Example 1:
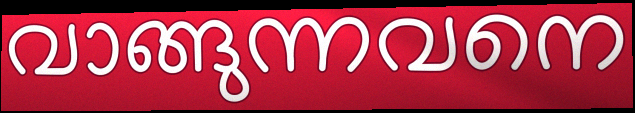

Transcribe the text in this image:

വാങ്ങുന്നവനെ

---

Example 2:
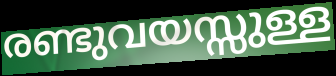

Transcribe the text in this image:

രണ്ടുവയസ്സുള്ള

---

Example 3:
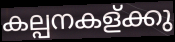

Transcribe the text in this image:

കല്പനകള്ക്കു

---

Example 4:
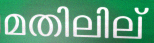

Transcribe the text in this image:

മതിലില്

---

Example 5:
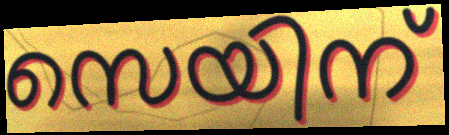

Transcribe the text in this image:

സെയിന്